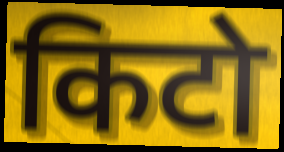
किटो